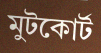
মুটকোর্ট